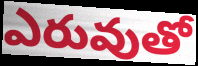
ఎరువుతో